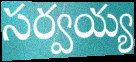
సర్వయ్య